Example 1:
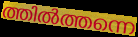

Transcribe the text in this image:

ത്തിൽത്തന്നെ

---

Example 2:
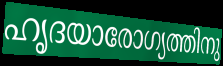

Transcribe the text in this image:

ഹൃദയാരോഗ്യത്തിനു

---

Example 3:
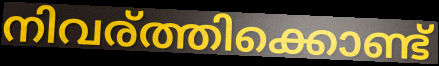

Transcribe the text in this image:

നിവര്ത്തിക്കൊണ്ട്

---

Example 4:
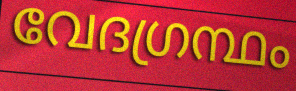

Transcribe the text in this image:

വേദഗ്രന്ഥം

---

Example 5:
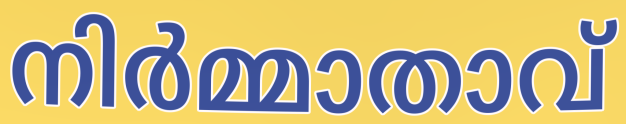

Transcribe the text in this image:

നിർമ്മാതാവ്